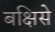
बक्षिसे